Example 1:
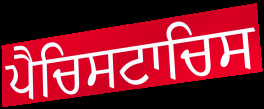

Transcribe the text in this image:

ਪੈਚਿਸਟਾਚਿਸ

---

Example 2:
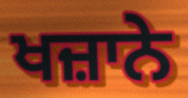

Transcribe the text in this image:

ਖਜ਼ਾਨੇ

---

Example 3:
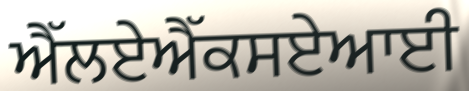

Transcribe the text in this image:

ਐੱਲਏਐੱਕਸਏਆਈ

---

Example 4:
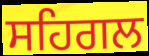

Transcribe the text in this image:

ਸਹਿਗਲ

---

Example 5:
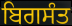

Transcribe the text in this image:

ਬਿਗਸੰਤ